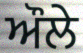
ਔਲੇ